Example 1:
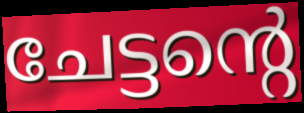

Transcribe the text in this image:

ചേട്ടന്റെ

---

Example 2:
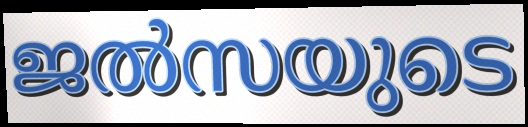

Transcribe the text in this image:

ജൽസയുടെ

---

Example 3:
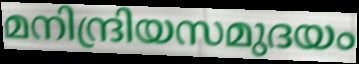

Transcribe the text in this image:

മനിന്ദ്രിയസമുദയം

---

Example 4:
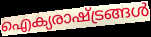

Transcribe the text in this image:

ഐക്യരാഷ്ട്രങ്ങൾ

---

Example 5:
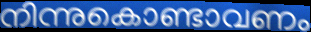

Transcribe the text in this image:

നിന്നുകൊണ്ടാവണം